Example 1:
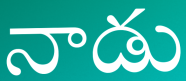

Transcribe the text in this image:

నాడు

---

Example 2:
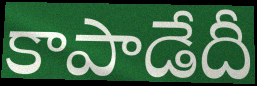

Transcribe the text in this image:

కాపాడేదీ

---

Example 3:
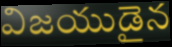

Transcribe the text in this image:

విజయుడైన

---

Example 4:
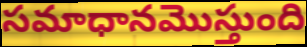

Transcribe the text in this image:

సమాధానమొస్తుంది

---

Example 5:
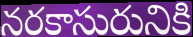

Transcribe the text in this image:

నరకాసురునికి